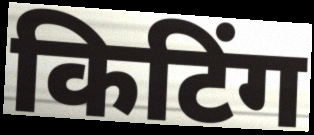
किटिंग